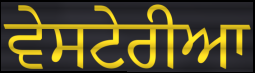
ਵੇਸਟੇਰੀਆ